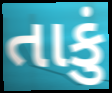
તાકું